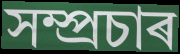
সম্প্ৰচাৰ